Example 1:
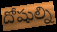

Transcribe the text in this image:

దోషుల్ని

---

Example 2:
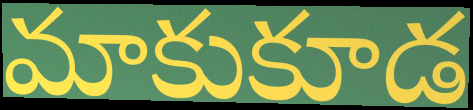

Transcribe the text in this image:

మాకుకూడ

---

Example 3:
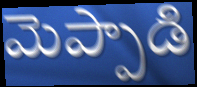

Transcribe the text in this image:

మెప్పాడి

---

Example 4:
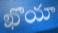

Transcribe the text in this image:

ఖొయా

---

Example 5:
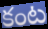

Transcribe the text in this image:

కంట